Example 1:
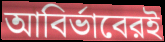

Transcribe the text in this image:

আবির্ভাবেরই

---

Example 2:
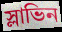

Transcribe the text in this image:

স্লাভিন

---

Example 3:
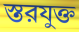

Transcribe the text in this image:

স্তরযুক্ত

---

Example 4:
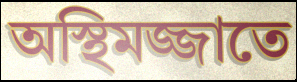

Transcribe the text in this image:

অস্থিমজ্জাতে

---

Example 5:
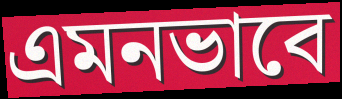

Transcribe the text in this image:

এমনভাবে